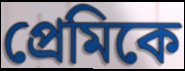
প্ৰেমিকে